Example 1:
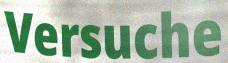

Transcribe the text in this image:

Versuche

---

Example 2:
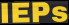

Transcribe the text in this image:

IEPs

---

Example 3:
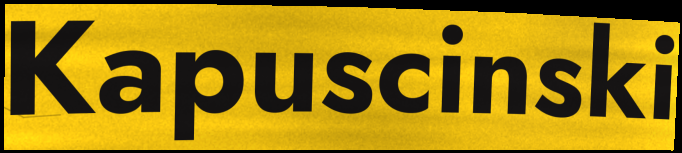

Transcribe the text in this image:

Kapuscinski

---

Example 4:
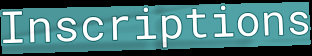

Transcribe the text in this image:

Inscriptions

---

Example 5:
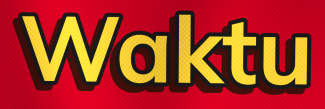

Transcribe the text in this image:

Waktu